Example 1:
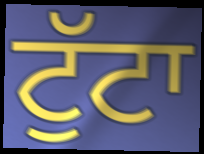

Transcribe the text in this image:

ਟੁੱਟਾ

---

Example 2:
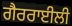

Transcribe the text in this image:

ਗੈਰਰਾਈਲੀ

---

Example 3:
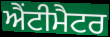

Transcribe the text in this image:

ਐਂਟੀਮੈਟਰ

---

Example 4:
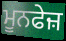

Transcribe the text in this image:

ਮੂਨਫੇਜ਼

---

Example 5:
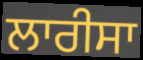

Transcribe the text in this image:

ਲਾਰੀਸਾ